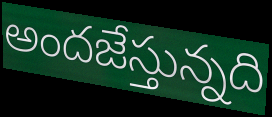
అందజేస్తున్నది